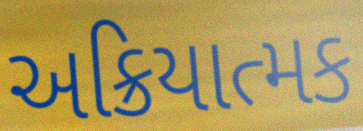
અક્રિયાત્મક